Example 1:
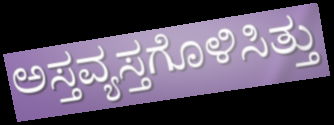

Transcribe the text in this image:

ಅಸ್ತವ್ಯಸ್ತಗೊಳಿಸಿತ್ತು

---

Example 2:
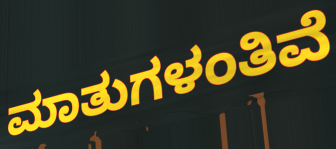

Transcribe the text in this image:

ಮಾತುಗಳಂತಿವೆ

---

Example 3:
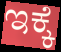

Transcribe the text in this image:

ಇಕ್ಕೆ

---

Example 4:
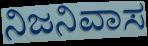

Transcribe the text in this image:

ನಿಜನಿವಾಸ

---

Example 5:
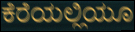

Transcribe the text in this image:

ಕೆರೆಯಲ್ಲಿಯೂ